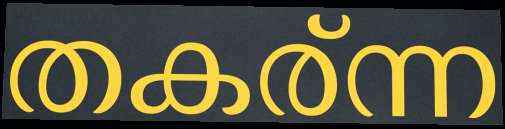
തകര്ന്ന